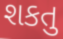
શકતુ